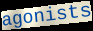
agonists